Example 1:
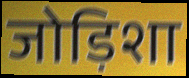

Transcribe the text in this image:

जोड़िशा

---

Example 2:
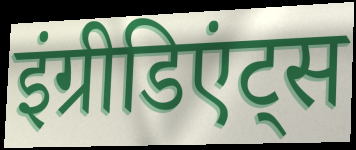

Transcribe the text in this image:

इंग्रीडिएंट्स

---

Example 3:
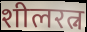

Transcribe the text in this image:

शीलरत्न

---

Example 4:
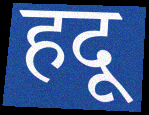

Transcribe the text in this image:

हदू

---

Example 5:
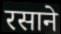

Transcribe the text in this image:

रसाने